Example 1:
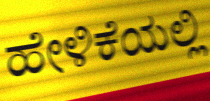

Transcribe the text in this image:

ಹೇಳಿಕೆಯಲ್ಲಿ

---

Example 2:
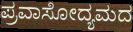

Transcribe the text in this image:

ಪ್ರವಾಸೋದ್ಯಮದ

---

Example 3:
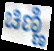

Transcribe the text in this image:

ಚಿಣ್ಣಿ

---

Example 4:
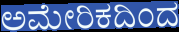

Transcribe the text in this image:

ಅಮೇರಿಕದಿಂದ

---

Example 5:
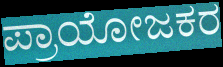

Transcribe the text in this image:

ಪ್ರಾಯೋಜಕರ